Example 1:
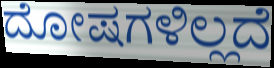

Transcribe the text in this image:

ದೋಷಗಳಿಲ್ಲದೆ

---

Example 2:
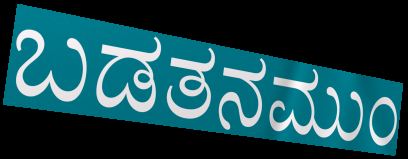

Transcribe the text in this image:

ಬಡತನಮುಂ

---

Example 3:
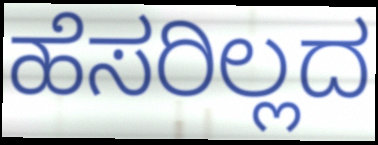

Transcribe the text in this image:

ಹೆಸರಿಲ್ಲದ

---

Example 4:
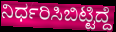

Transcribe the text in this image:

ನಿರ್ಧರಿಸಿಬಿಟ್ಟಿದ್ದೆ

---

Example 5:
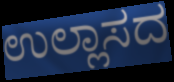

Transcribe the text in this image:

ಉಲ್ಲಾಸದ